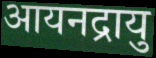
आयनद्रायु